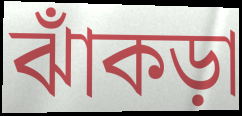
ঝাঁকড়া